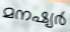
മനഷ്യർ